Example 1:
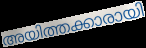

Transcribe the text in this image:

അയിത്തക്കാരായി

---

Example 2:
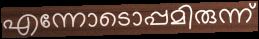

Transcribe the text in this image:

എന്നോടൊപ്പമിരുന്ന്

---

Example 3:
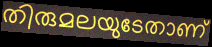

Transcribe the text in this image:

തിരുമലയുടേതാണ്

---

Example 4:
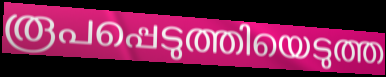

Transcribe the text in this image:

രൂപപ്പെടുത്തിയെടുത്ത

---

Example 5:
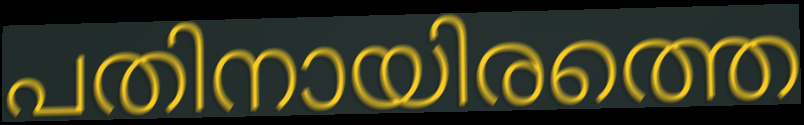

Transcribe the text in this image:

പതിനായിരത്തെ